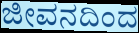
ಜೀವನದಿಂದ